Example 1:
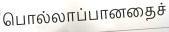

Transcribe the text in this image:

பொல்லாப்பானதைச்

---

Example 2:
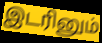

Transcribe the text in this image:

இடரினும்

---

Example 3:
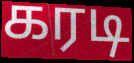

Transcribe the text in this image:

கரடி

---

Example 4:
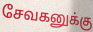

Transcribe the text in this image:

சேவகனுக்கு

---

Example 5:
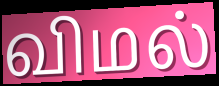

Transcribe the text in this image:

விமல்